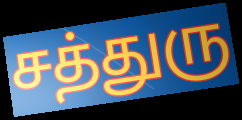
சத்துரு